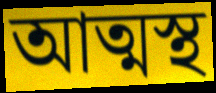
আত্মস্থ